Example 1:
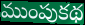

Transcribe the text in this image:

ముంపుకథ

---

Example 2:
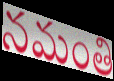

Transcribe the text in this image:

నమంతి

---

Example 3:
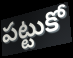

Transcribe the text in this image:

పట్టుకో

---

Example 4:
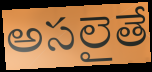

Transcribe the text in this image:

అసలైతే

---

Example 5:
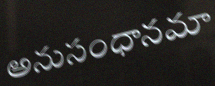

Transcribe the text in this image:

అనుసంధానమా